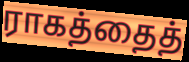
ராகத்தைத்